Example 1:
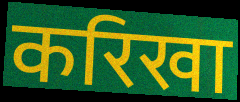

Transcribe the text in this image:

करिखा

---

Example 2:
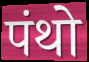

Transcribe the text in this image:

पंथो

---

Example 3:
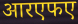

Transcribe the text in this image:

आरएफए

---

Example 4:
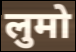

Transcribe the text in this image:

लुमो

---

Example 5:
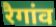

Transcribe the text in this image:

रैगांव